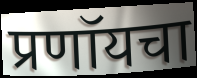
प्रणॉयचा